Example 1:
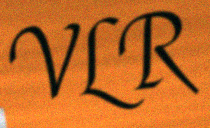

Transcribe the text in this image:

VLR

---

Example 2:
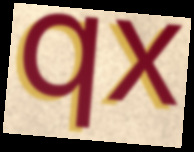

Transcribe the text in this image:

qx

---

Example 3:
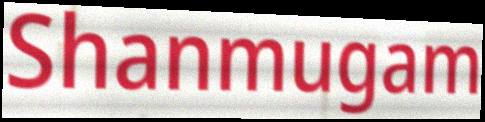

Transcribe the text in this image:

Shanmugam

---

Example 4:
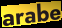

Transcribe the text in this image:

arabe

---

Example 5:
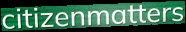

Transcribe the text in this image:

citizenmatters